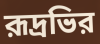
রূদ্রভির